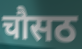
चौसठ